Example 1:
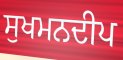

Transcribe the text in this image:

ਸੁਖਮਨਦੀਪ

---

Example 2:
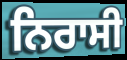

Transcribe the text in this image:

ਨਿਰਾਸੀ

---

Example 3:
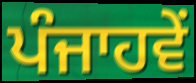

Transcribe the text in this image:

ਪੰਜਾਹਵੇਂ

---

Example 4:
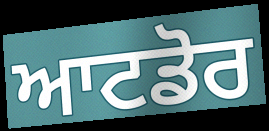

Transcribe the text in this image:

ਆਟਡੋਰ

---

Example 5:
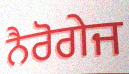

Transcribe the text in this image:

ਨੈਰੋਗੇਜ